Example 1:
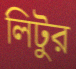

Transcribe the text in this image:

লিটুর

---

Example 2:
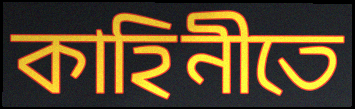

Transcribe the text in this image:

কাহিনীতে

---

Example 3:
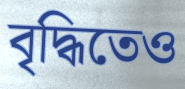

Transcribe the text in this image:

বৃদ্ধিতেও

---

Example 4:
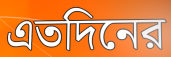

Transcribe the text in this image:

এতদিনের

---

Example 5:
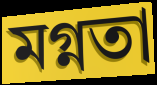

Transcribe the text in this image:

মগ্নতা